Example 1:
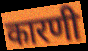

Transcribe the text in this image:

कारणी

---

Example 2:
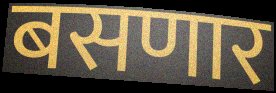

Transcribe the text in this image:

बसणार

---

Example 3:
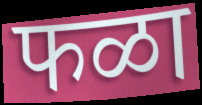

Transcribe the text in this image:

फळा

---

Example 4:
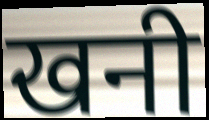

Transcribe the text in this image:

खनी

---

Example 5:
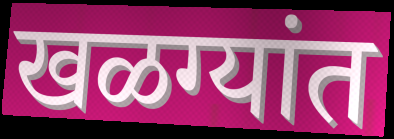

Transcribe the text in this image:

खळग्यांत